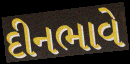
દીનભાવે